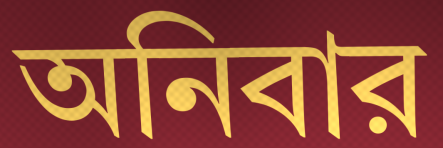
অনিবার